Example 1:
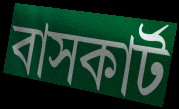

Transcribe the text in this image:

বাসকার্ট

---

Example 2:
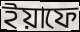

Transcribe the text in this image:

ইয়াফে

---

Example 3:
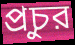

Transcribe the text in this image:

প্রচুর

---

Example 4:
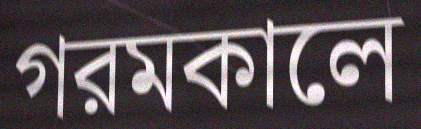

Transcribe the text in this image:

গরমকালে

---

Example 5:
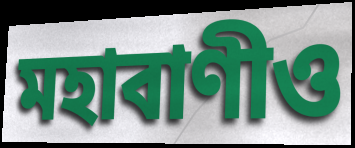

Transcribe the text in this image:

মহাবাণীও